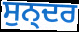
ਸੁਨ੍ਦਰ